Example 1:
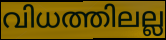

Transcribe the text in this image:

വിധത്തിലല്ല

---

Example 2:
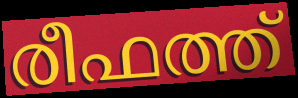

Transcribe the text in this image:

രീഫത്ത്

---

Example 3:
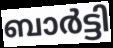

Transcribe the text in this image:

ബാർട്ടി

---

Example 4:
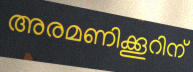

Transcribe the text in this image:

അരമണിക്കൂറിന്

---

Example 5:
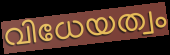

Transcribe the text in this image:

വിധേയത്വം